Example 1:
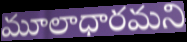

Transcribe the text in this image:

మూలాధారమని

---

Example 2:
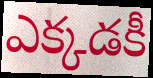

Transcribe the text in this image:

ఎక్కడకీ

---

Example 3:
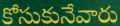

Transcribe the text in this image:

కోసుకునేవారు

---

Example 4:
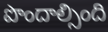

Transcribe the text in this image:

పొందాల్సింది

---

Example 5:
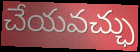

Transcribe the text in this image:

చేయవచ్ఛు